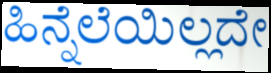
ಹಿನ್ನೆಲೆಯಿಲ್ಲದೇ